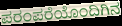
ಪರಂಪರೆಯೊಂದಿಗಿನ